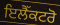
ਇਲੈੱਕਟਰੋ